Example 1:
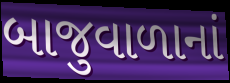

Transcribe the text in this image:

બાજુવાળાનાં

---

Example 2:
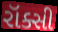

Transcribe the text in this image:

રૉક્સી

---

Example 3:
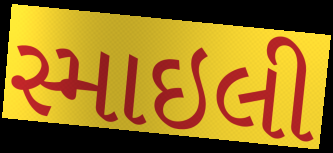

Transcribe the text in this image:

સ્માઇલી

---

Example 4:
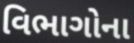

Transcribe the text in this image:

વિભાગોના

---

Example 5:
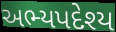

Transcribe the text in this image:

અભ્યપદેશ્ય